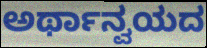
ಅರ್ಥಾನ್ವಯದ